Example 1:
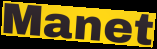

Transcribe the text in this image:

Manet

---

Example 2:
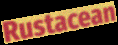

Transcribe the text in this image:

Rustacean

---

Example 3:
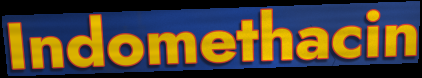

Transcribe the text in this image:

Indomethacin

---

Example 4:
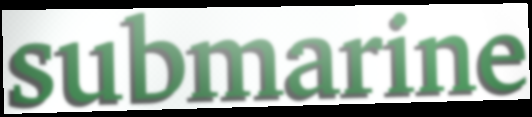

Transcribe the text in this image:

submarine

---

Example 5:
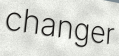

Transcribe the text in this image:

changer